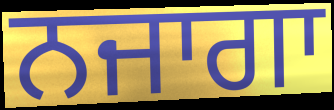
ਨਜਾਗਾ